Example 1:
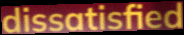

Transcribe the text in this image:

dissatisfied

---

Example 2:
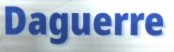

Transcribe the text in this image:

Daguerre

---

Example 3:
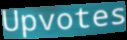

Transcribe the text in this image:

Upvotes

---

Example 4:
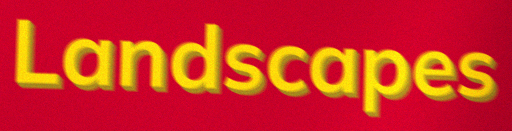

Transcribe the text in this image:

Landscapes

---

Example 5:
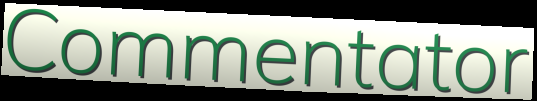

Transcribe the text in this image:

Commentator